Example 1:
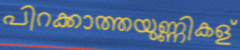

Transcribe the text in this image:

പിറക്കാത്തയുണ്ണികള്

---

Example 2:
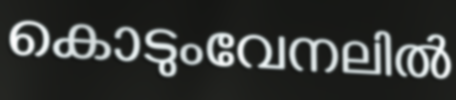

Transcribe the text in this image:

കൊടുംവേനലിൽ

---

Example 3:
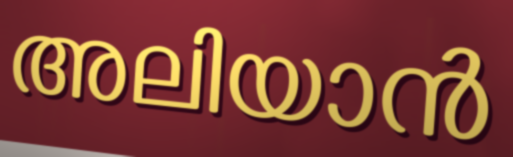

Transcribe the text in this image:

അലിയാൻ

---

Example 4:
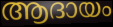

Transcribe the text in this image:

ആദായം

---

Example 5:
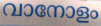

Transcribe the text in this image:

വാനോളം